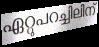
ഏറ്റുപറച്ചിലിന്